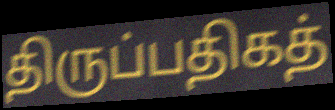
திருப்பதிகத்